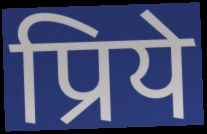
प्रिये